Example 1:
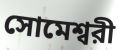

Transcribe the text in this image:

সোমেশ্বরী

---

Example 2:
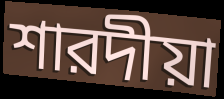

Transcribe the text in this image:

শারদীয়া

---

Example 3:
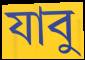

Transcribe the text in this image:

যাবু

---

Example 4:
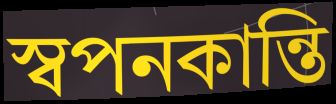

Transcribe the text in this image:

স্বপনকান্তি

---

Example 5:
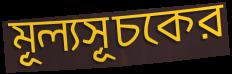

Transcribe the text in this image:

মূল্যসূচকের